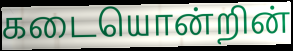
கடையொன்றின்